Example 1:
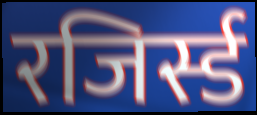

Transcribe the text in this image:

रजिर्स्ड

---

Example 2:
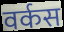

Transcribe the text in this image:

वर्कस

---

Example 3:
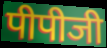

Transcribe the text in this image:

पीपीजी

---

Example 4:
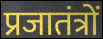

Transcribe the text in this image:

प्रजातंत्रों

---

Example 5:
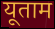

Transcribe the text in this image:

यूताम